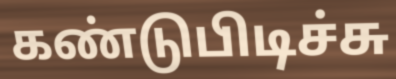
கண்டுபிடிச்சு